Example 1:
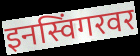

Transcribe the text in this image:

इनस्विंगरवर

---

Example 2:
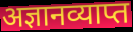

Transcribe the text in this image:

अज्ञानव्याप्त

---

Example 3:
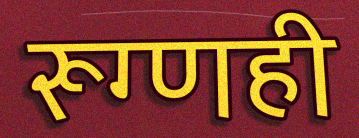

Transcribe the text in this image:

रूग्णही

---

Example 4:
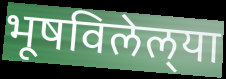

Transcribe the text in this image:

भूषविलेल्या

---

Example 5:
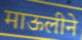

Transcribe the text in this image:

माऊलीने